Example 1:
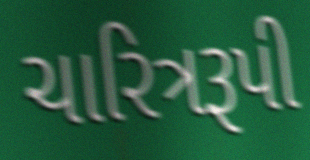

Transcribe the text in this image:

ચારિત્રરૂપી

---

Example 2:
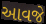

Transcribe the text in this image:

આવજે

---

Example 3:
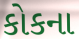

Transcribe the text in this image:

કોકના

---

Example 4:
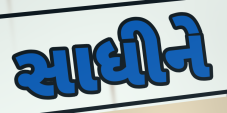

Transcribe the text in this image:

સાધીને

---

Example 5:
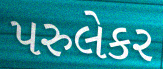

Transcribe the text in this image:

પરુલેકર